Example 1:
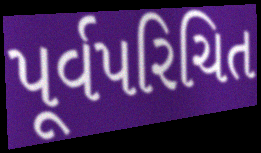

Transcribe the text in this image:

પૂર્વપરિચિત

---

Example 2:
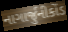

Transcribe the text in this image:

નાગાર્જુનીકોંડ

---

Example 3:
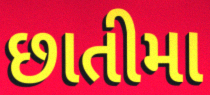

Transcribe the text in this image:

છાતીમા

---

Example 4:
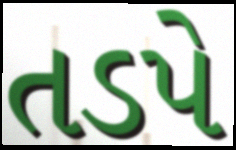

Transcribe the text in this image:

તડપે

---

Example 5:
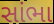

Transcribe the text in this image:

સાંભા